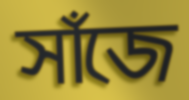
সাঁজে